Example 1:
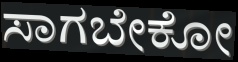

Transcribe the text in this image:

ಸಾಗಬೇಕೋ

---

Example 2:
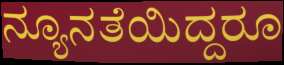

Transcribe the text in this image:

ನ್ಯೂನತೆಯಿದ್ದರೂ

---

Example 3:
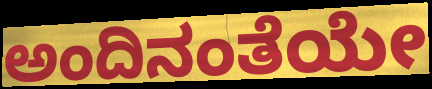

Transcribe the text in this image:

ಅಂದಿನಂತೆಯೇ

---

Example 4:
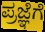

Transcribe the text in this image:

ಪ್ರಜ್ಞೆಗೆ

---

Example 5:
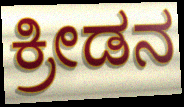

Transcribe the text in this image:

ಕ್ರೀಡನ